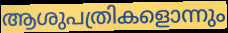
ആശുപത്രികളൊന്നും